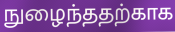
நுழைந்ததற்காக